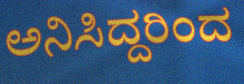
ಅನಿಸಿದ್ದರಿಂದ